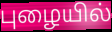
புழையில்